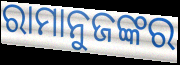
ରାମାନୁଜଙ୍କର